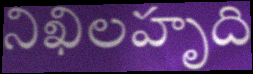
నిఖిలహృది